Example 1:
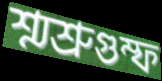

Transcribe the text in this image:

শ্মশ্রুগুম্ফ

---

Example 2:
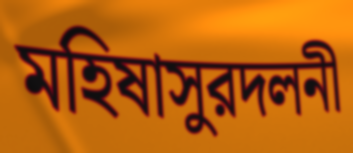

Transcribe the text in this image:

মহিষাসুরদলনী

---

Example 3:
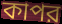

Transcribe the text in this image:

কাপর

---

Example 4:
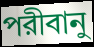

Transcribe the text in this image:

পরীবানু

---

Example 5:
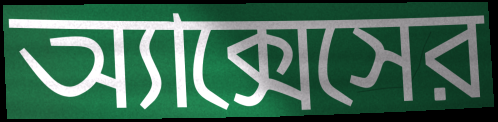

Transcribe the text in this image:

অ্যাক্সেসের